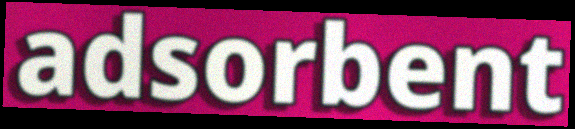
adsorbent